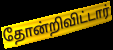
தோன்றிவிட்டார்